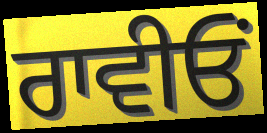
ਰਾਵੀਓਂ